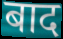
बाद